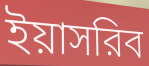
ইয়াসরিব